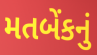
મતબેંકનું